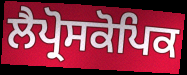
ਲੈਪ੍ਰੋਸਕੋਪਿਕ